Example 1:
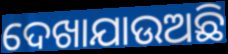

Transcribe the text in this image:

ଦେଖାଯାଉଅଛି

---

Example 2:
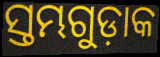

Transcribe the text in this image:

ସ୍ତମ୍ଭଗୁଡ଼ାକ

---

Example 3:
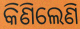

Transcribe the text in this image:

କିଣିଲେଣି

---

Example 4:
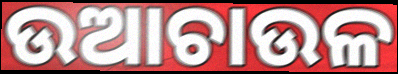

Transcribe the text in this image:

ଉଆଚାଉଳ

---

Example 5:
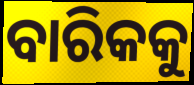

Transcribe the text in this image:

ବାରିକକୁ